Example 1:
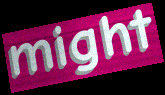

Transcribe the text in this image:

might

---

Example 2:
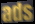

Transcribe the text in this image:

ads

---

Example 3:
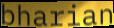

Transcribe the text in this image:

bharian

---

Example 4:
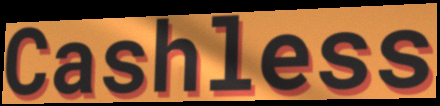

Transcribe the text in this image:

Cashless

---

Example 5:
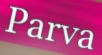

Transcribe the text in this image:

Parva